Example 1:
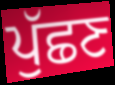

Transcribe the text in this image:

ਪੁੱਛਣ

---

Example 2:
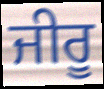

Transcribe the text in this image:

ਜੀਰੂ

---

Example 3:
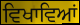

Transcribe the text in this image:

ਵਿਖਾਵਿਆਂ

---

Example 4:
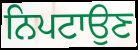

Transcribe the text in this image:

ਨਿਪਟਾਉਣ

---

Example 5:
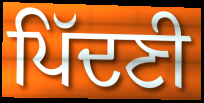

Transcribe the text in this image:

ਪਿੱਦਣੀ